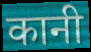
कानी